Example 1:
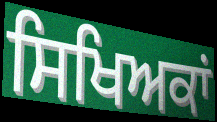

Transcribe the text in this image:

ਸਿਖਿਅਕਾਂ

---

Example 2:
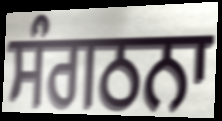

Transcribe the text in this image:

ਸੰਗਠਨਾ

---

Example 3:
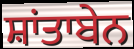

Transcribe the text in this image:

ਸ਼ਾਂਤਾਬੇਨ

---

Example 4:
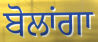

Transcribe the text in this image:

ਬੋਲਾਂਗਾ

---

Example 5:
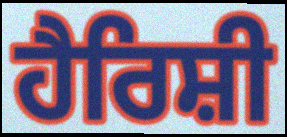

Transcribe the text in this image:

ਹੈਰਿਸ਼ੀ